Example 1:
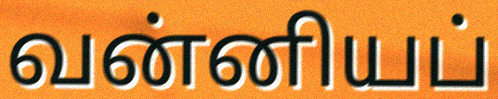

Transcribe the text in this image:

வன்னியப்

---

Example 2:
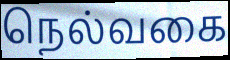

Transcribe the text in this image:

நெல்வகை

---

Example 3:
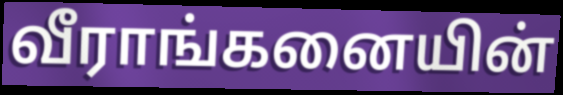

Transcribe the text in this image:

வீராங்கனையின்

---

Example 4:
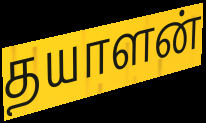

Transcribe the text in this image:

தயாளன்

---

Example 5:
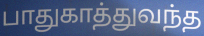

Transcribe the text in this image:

பாதுகாத்துவந்த